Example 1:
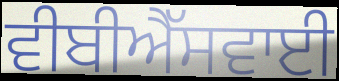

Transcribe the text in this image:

ਵੀਬੀਐੱਸਵਾਈ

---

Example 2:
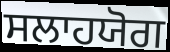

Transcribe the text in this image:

ਸਲਾਹਯੋਗ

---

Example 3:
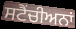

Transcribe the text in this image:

ਸਟੈਂਚੀਅਨਾਂ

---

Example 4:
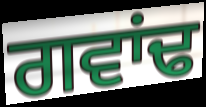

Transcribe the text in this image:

ਗਵਾਂਢ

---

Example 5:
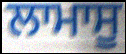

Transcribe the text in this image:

ਲਾਮਾਸੂ